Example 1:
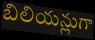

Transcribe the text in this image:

బిలియన్లుగా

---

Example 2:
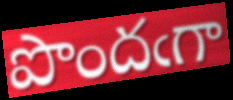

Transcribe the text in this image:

పొందఁగా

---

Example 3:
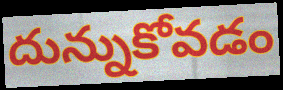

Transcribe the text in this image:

దున్నుకోవడం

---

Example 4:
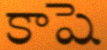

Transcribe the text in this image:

కాషె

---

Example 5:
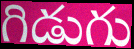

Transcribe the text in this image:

గిడుగు